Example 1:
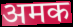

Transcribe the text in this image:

अमक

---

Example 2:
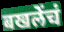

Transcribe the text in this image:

बखलेंचं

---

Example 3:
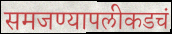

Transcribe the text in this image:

समजण्यापलीकडचं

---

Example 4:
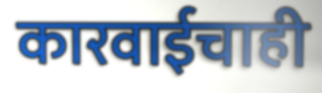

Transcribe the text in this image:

कारवाईचाही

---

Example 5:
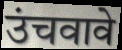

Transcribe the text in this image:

उंचवावे